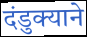
दंडुक्याने